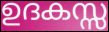
ഉദകസ്സ